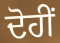
ਦੋਹੀਂ